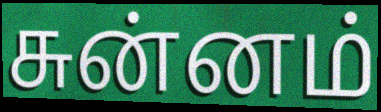
சுன்னம்